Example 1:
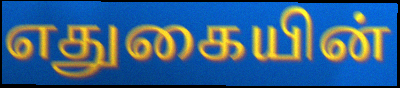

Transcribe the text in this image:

எதுகையின்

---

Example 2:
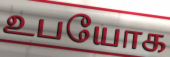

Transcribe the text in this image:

உபயோக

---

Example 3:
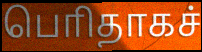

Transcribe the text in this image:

பெரிதாகச்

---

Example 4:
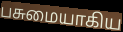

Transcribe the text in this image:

பசுமையாகிய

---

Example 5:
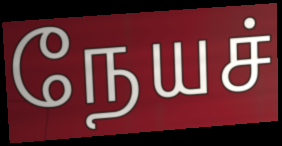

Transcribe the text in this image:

நேயச்